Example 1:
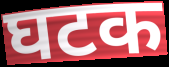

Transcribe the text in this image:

घटक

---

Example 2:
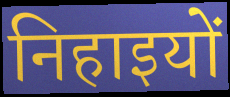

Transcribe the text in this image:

निहाइयों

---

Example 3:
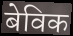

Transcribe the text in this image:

बेविक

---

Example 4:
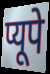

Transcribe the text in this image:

प्यूपे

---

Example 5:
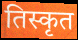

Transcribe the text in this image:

तिस्कृत